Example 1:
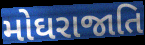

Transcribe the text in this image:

મોઘરાજાતિ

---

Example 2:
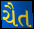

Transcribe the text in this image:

ચૈત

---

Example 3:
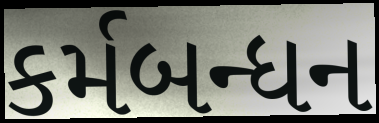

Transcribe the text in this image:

કર્મબન્ધન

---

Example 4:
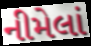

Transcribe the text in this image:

નીમેલાં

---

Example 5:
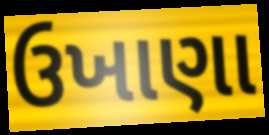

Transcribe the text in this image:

ઉખાણા